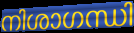
നിശാഗന്ധി